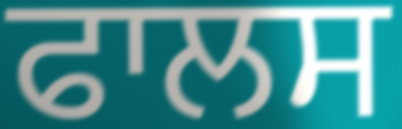
ਫਾਲਸ